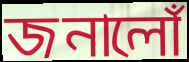
জনালোঁ